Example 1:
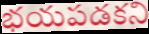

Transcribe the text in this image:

భయపడకని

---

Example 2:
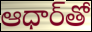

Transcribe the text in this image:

ఆధార్‌తో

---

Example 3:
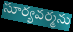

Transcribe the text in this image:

సూర్యవర్మను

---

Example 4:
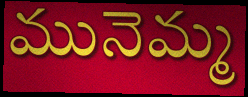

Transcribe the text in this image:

మునెమ్మ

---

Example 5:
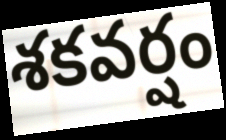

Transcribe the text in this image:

శకవర్షం